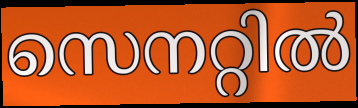
സെനറ്റിൽ